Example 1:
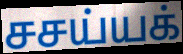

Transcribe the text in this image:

சசய்யக்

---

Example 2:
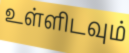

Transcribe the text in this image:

உள்ளிடவும்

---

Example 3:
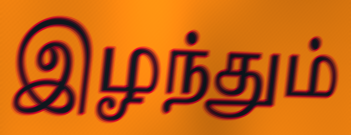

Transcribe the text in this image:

இழந்தும்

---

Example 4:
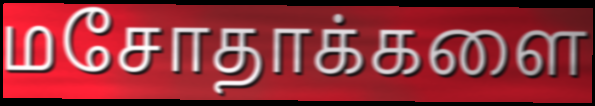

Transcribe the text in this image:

மசோதாக்களை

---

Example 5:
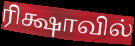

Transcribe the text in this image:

ரிக்ஷாவில்